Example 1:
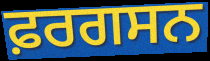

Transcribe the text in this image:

ਫ਼ਰਗਸਨ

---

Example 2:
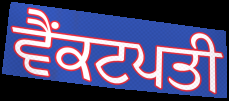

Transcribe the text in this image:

ਵੈਂਕਟਪਤੀ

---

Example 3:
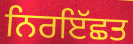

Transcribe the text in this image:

ਨਿਰਇੱਛਤ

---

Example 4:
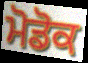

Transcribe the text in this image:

ਮੋਡੋਕ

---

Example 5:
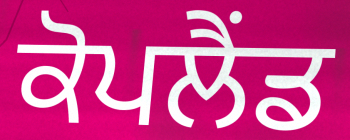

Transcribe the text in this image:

ਕੋਪਲੈਂਡ